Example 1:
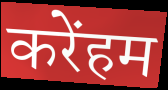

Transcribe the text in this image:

करेंहम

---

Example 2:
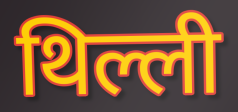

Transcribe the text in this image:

थिल्ली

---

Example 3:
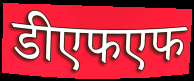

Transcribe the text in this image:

डीएफएफ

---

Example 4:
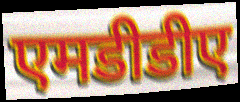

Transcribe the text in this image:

एमडीडीए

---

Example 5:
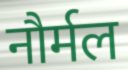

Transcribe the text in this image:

नौर्मल